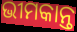
ଭୀମକାନ୍ତ